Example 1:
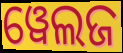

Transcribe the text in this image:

ୱେଲଜ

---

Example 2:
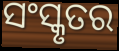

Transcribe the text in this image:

ସଂସ୍କୃତର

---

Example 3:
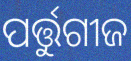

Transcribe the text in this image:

ପର୍ତ୍ତୁଗୀଜ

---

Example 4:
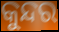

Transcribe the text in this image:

କୁନ୍ଦର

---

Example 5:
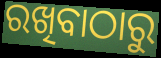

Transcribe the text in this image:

ରଖିବାଠାରୁ